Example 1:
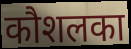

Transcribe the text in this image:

कौशलका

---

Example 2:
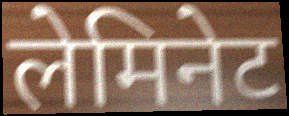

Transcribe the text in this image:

लेमिनेट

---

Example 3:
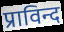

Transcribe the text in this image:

प्राविन्द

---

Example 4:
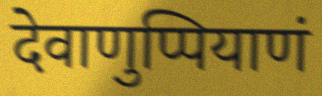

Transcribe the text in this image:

देवाणुप्पियाणं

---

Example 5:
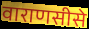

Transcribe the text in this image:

वाराणसीसे